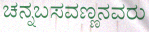
ಚನ್ನಬಸವಣ್ಣನವರು